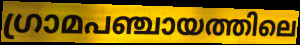
ഗ്രാമപഞ്ചായത്തിലെ